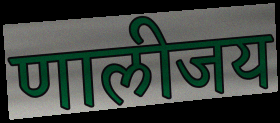
णालीजय